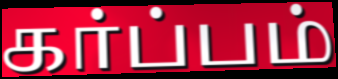
கர்ப்பம்